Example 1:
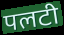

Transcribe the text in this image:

पलटी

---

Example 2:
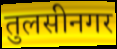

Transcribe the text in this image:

तुलसीनगर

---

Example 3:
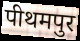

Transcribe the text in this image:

पीथमपुर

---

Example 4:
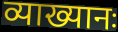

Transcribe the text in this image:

व्याख्यानः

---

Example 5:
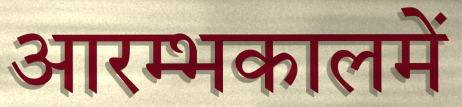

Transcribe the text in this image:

आरम्भकालमें